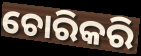
ଚୋରିକରି